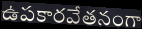
ఉపకారవేతనంగా